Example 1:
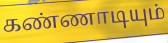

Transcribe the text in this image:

கண்ணாடியும்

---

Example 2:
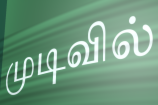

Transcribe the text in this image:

முடிவில்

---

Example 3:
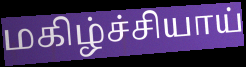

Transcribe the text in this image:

மகிழ்ச்சியாய்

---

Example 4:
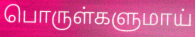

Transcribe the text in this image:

பொருள்களுமாய்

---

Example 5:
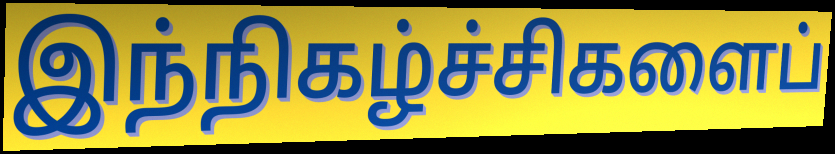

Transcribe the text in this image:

இந்நிகழ்ச்சிகளைப்